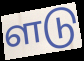
ளடு